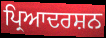
ਪ੍ਰਿਆਦਰਸ਼ਨ